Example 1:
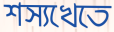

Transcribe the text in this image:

শস্যখেতে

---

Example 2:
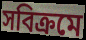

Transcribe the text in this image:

সবিক্রমে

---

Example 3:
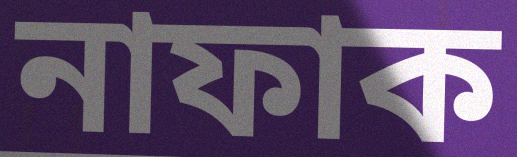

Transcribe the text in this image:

নাফাক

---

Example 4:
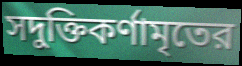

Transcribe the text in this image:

সদুক্তিকর্ণামৃতের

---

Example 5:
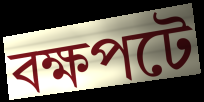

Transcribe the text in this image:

বক্ষপটে